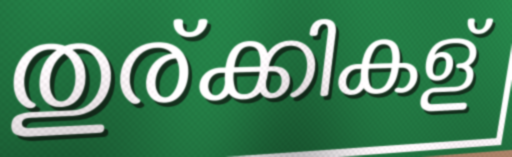
തുര്ക്കികള്